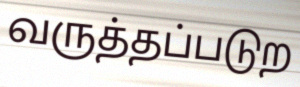
வருத்தப்படுற